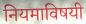
नियमाविषयी